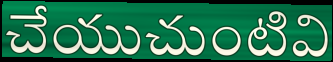
చేయుచుంటివి